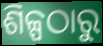
ଶିଳ୍ପଠାରୁ